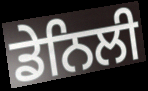
ਡੇਨਿਲੀ